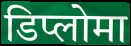
डिप्‍लोमा